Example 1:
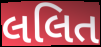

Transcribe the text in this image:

લલિત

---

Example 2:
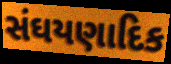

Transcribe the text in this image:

સંઘયણાદિક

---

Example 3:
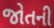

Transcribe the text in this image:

જોતની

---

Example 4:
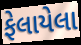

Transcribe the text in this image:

ફેલાયેલા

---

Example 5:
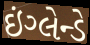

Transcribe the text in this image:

ઇંગ્લેન્ડે